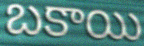
బకాయి